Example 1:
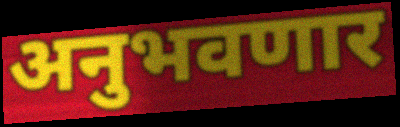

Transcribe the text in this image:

अनुभवणार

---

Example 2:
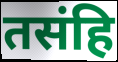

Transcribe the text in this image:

तसंहि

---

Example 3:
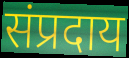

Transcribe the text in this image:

संप्रदाय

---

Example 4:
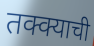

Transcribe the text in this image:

तक्क्याची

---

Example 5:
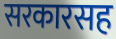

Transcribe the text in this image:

सरकारसह